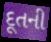
દૂતની